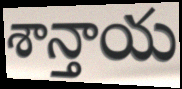
శాన్తాయ